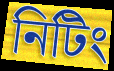
নিটিং